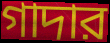
গাদার